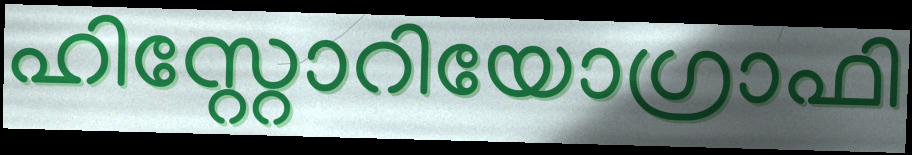
ഹിസ്റ്റോറിയോഗ്രാഫി